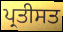
ਪ੍ਰਤੀਸਤ